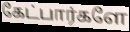
கேட்பார்களே